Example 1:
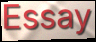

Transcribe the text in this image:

Essay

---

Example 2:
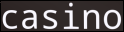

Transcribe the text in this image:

casino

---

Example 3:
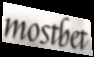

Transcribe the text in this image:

mostbet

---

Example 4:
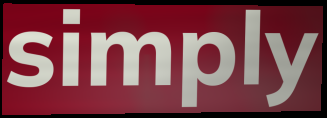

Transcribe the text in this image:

simply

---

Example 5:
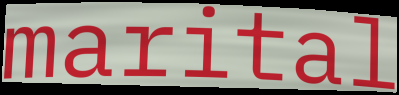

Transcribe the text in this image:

marital